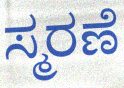
ಸ್ಮರಣೆ